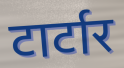
टार्टार